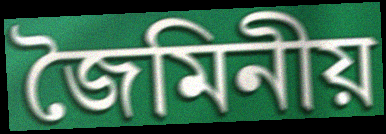
জৈমিনীয়